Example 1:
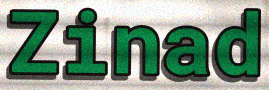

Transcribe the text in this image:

Zinad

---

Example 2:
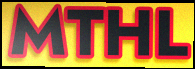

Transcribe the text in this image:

MTHL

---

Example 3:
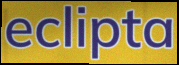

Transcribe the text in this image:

eclipta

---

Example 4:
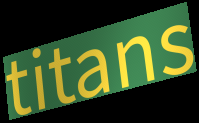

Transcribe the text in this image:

titans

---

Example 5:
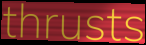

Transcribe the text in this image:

thrusts